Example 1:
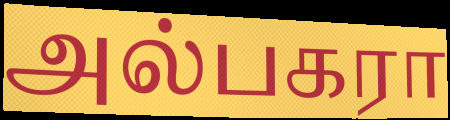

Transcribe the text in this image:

அல்பகரா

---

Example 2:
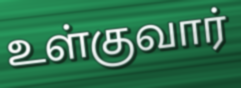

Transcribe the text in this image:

உள்குவார்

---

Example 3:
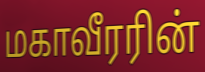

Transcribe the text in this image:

மகாவீரரின்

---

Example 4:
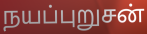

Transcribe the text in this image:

நயப்புறுசன்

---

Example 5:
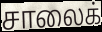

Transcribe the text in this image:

சாலைக்